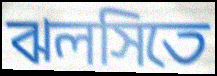
ঝলসিতে